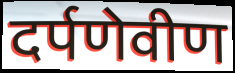
दर्पणेवीण